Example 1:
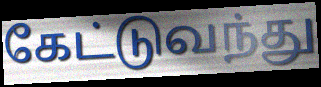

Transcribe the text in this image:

கேட்டுவந்து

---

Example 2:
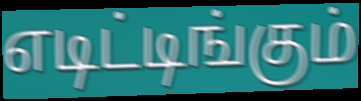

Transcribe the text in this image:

எடிட்டிங்கும்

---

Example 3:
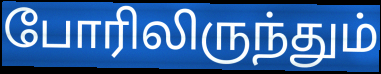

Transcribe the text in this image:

போரிலிருந்தும்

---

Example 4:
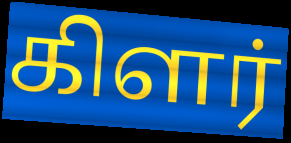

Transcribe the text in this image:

கிளர்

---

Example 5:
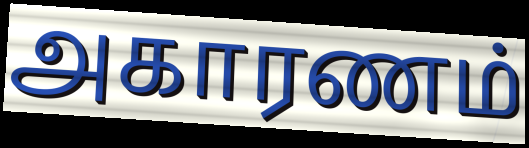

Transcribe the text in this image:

அகாரணம்